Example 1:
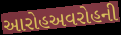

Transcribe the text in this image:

આરોહઅવરોહની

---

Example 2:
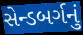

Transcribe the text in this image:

સેન્ડબર્ગનું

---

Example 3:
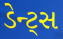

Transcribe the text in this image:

ડેન્ટ્સ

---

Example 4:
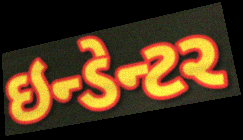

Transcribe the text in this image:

ઇન્ડેન્ટર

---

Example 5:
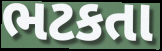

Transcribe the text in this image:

ભટકતા